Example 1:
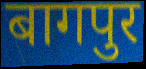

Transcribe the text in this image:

बागपुर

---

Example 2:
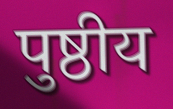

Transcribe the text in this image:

पुष्ठीय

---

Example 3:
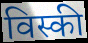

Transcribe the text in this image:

विस्की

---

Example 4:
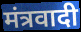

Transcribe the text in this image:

मंत्रवादी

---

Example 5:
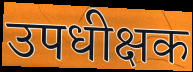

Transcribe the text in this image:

उपधीक्षक